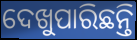
ଦେଖୁପାରିଛନ୍ତି